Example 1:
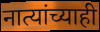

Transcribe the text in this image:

नात्यांच्याही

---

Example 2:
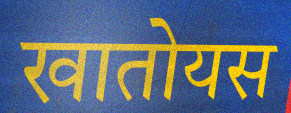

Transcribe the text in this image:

खातोयस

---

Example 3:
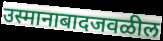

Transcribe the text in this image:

उस्मानाबादजवळील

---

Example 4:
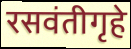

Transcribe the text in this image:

रसवंतीगृहे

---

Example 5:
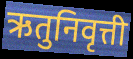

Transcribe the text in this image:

ऋतुनिवृत्ती